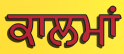
ਕਾਲਮਾਂ